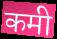
कमी